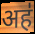
अह॑